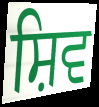
ਸ਼ਿਵ